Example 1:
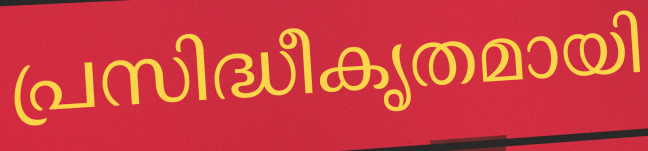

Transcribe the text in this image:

പ്രസിദ്ധീകൃതമായി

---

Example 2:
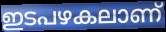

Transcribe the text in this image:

ഇടപഴകലാണ്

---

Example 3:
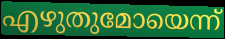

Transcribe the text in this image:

എഴുതുമോയെന്ന്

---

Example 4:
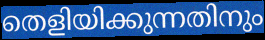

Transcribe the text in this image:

തെളിയിക്കുന്നതിനും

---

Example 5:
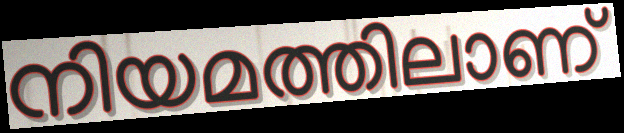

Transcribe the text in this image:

നിയമത്തിലാണ്